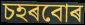
চহৰবোৰ